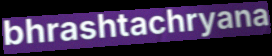
bhrashtachryana